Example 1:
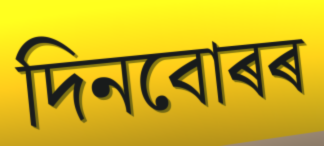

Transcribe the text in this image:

দিনবোৰৰ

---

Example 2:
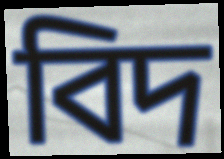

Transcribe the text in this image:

বিদ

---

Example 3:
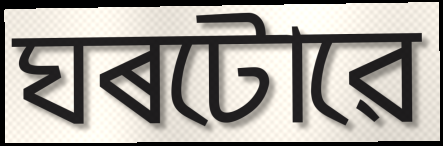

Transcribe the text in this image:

ঘৰটোৱে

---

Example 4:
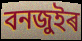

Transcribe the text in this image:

বনজুইৰ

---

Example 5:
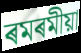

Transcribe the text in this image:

ৰমৰমীয়া